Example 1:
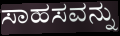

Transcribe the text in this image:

ಸಾಹಸವನ್ನು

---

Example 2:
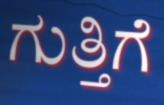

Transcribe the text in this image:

ಗುತ್ತಿಗೆ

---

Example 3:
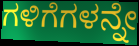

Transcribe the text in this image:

ಗಳಿಗೆಗಳನ್ನೇ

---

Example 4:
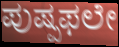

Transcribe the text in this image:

ಪುಷ್ಪಫಲೇ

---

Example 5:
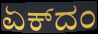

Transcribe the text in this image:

ಏಕ್‌ದಂ